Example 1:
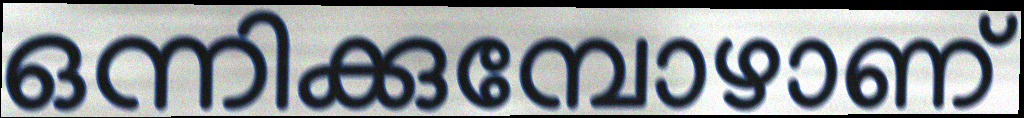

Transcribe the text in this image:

ഒന്നിക്കുമ്പോഴാണ്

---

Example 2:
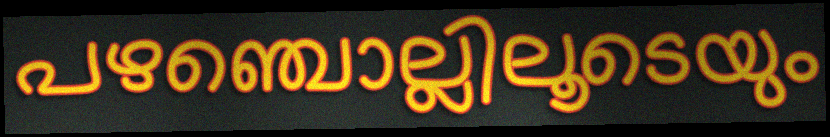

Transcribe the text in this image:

പഴഞ്ചൊല്ലിലൂടെയും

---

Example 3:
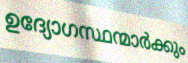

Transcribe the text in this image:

ഉദ്യോഗസ്ഥന്മാർക്കും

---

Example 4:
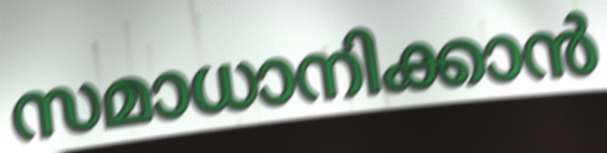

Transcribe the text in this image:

സമാധാനിക്കാൻ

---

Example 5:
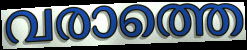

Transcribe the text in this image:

വരാത്തെ